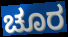
ಚೂರ